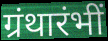
ग्रंथारंभीं